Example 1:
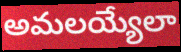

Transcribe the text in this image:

అమలయ్యేలా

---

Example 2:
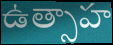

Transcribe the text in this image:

ఉత్సాహ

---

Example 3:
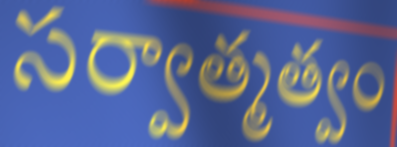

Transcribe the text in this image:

సర్వాత్మత్వం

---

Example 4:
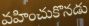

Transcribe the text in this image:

వహించుకొనడు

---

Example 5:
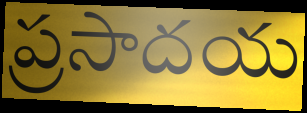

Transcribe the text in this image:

ప్రసాదయ